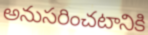
అనుసరించటానికి